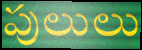
పులులు